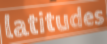
latitudes